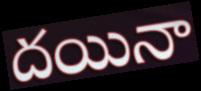
దయినా